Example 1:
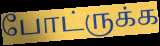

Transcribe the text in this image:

போட்ருக்க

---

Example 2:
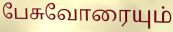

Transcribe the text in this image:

பேசுவோரையும்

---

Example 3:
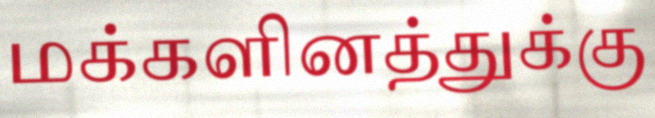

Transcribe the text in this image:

மக்களினத்துக்கு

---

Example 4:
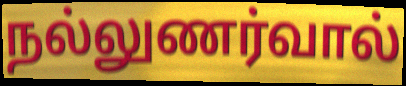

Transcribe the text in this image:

நல்லுணர்வால்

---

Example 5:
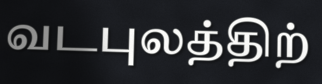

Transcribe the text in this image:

வடபுலத்திற்